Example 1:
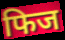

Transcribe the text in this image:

फिज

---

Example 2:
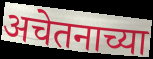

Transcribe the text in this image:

अचेतनाच्या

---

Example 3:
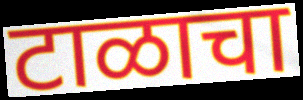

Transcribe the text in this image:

टाळाचा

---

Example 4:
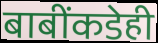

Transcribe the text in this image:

बाबींकडेही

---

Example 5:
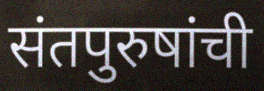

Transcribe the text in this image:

संतपुरुषांची